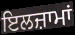
ਇਲਜ਼ਾਮਾਂ